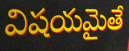
విషయమైతే